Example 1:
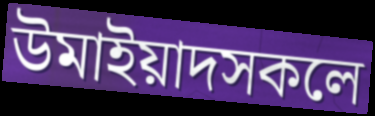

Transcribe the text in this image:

উমাইয়াদসকলে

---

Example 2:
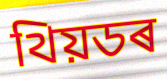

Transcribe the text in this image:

থিয়ডৰ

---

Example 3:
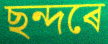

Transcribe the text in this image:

ছন্দৰে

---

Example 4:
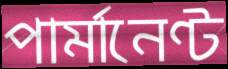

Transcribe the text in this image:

পাৰ্মানেণ্ট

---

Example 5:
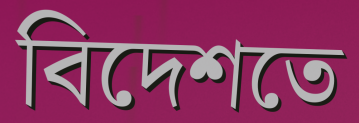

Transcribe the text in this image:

বিদেশতে